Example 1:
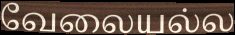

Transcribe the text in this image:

வேலையல்ல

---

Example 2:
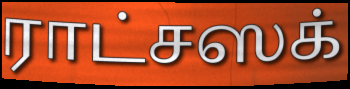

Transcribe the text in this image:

ராட்சஸக்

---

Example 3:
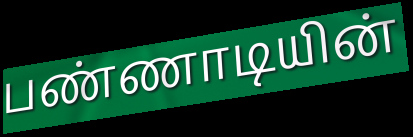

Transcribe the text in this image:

பண்ணாடியின்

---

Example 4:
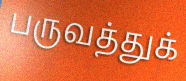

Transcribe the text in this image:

பருவத்துக்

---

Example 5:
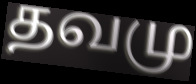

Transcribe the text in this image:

தவமு